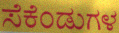
ಸೆಕೆಂಡುಗಳ